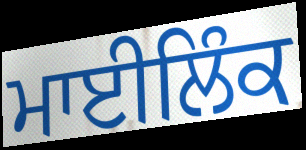
ਮਾਈਲਿੰਕ